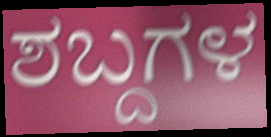
ಶಬ್ದಗಳ